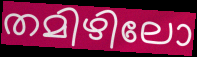
തമിഴിലോ